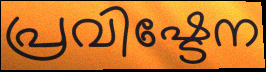
പ്രവിഷ്ടേന